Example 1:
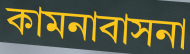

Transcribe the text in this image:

কামনাবাসনা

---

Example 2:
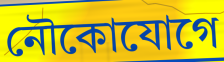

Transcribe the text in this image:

নৌকোযোগে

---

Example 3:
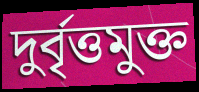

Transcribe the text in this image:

দুর্বৃত্তমুক্ত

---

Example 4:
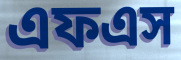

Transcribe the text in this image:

এফএস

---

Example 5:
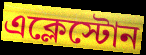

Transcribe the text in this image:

এক্লেস্টোন